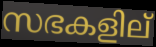
സഭകളില്